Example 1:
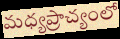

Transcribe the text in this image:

మధ్యప్రాచ్యంలో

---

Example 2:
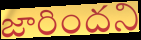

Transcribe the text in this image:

జారిందని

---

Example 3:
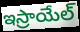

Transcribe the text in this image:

ఇస్రాయేల్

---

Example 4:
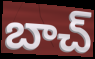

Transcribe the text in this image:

బాచ్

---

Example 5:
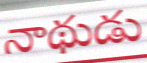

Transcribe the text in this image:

నాథుడు